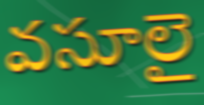
వసూలై